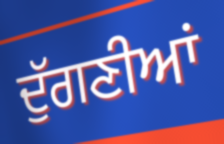
ਦੁੱਗਣੀਆਂ